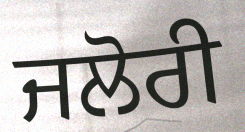
ਜਲੋਰੀ